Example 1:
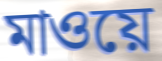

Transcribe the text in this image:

মাওয়ে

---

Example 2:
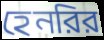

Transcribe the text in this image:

হেনরির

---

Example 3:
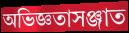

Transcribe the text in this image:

অভিজ্ঞতাসঞ্জাত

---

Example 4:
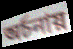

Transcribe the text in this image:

অর্চনায়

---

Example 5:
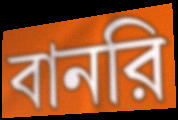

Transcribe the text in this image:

বানরি